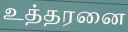
உத்தரனை